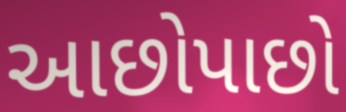
આછોપાછો